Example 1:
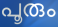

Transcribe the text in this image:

പൂരും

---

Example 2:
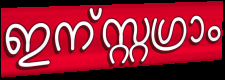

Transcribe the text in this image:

ഇന്സ്റ്റഗ്രാം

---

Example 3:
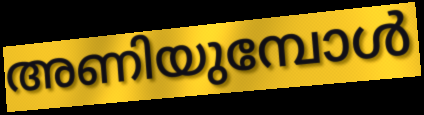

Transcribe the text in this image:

അണിയുമ്പോൾ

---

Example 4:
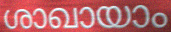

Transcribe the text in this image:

ശാഖായാം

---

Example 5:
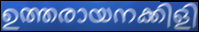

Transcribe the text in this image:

ഉത്തരായനക്കിളി